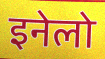
इनेलो